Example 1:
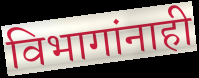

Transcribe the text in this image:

विभागांनाही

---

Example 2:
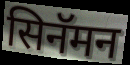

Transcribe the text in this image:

सिनॅमन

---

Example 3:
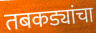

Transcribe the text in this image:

तबकड्यांचा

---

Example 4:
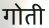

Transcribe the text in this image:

गोती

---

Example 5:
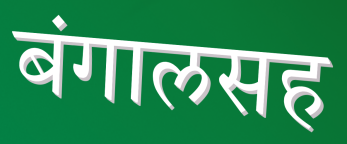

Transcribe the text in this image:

बंगालसह